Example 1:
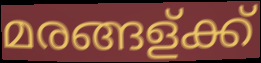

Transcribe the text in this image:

മരങ്ങള്ക്ക്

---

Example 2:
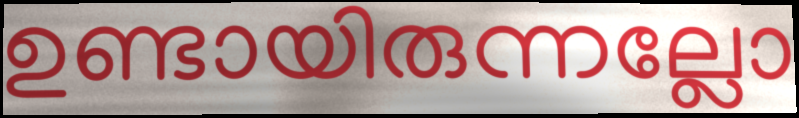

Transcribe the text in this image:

ഉണ്ടായിരുന്നല്ലോ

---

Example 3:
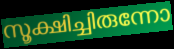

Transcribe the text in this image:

സൂക്ഷിച്ചിരുന്നോ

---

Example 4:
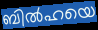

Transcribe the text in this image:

ബിൽഹയെ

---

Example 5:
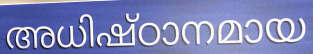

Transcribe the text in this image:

അധിഷ്ഠാനമായ